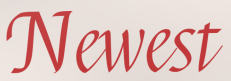
Newest